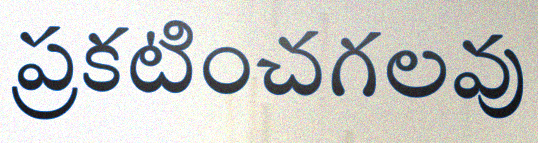
ప్రకటించగలవు